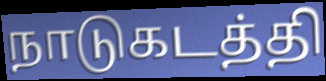
நாடுகடத்தி